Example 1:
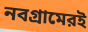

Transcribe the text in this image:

নবগ্রামেরই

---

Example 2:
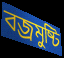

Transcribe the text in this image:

বজ্রমুষ্টি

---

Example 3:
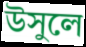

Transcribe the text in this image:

উসুলে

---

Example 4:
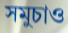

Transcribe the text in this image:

সমুচাও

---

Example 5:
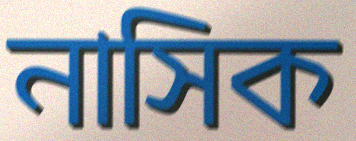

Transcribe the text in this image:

নাসিক